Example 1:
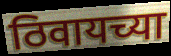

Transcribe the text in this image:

ठिवायच्या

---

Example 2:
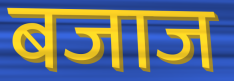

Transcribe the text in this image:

बजाज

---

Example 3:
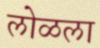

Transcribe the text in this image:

लोळला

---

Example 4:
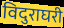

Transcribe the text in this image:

विदुराघरी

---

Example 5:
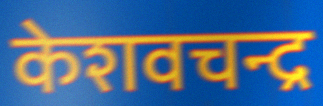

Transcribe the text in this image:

केशवचन्द्र